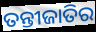
ତନ୍ତୀଜାତିର